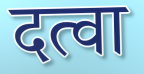
दत्वा